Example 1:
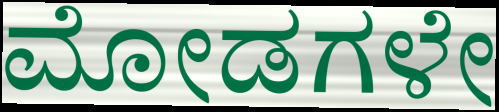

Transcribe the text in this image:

ಮೋಡಗಳೇ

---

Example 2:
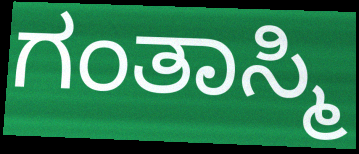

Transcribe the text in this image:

ಗಂತಾಸ್ಮಿ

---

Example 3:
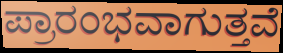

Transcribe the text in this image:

ಪ್ರಾರಂಭವಾಗುತ್ತವೆ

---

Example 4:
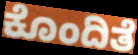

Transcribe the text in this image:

ಕೊಂದಿತೆ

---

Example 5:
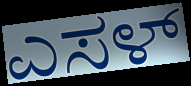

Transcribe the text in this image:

ಎಸಳ್